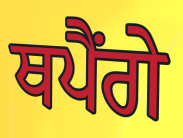
ਥਪੈਂਗੇ